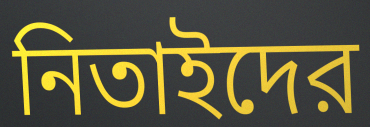
নিতাইদের